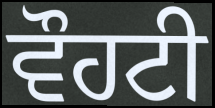
ਵੌਹਟੀ